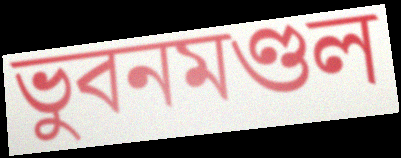
ভুবনমণ্ডল